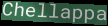
Chellappa